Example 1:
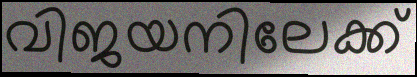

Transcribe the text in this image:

വിജയനിലേക്ക്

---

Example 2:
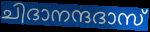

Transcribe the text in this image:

ചിദാനന്ദദാസ്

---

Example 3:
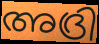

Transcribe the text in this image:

അദ്രി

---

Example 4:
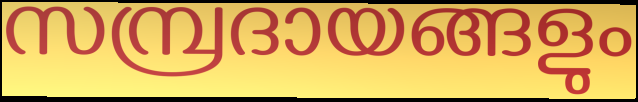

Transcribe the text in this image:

സമ്പ്രദായങ്ങളും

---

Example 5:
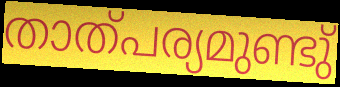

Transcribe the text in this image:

താത്പര്യമുണ്ടു്